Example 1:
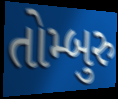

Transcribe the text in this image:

તોમ્બુરુ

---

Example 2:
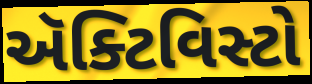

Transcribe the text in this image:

ઍક્ટિવિસ્ટો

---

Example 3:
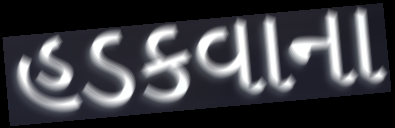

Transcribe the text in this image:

હડકવાના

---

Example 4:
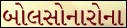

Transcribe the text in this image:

બોલસોનારોના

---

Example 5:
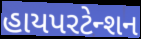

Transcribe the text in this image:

હાયપરટેન્શન